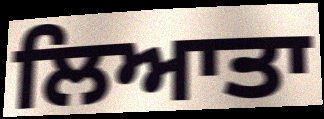
ਲਿਆਤਾ